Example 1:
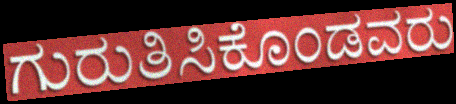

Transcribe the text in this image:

ಗುರುತಿಸಿಕೊಂಡವರು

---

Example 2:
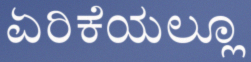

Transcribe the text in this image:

ಏರಿಕೆಯಲ್ಲೂ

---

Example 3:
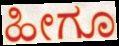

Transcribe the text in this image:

ಹೀಗೂ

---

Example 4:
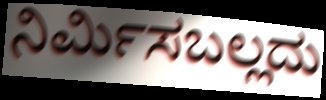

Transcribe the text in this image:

ನಿರ್ಮಿಸಬಲ್ಲದು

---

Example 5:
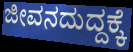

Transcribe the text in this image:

ಜೀವನದುದ್ದಕ್ಕೆ